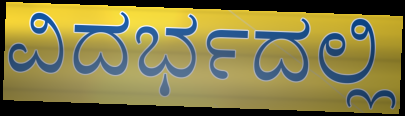
ವಿದರ್ಭದಲ್ಲಿ